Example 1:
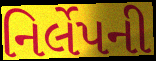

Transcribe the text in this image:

નિર્લેપની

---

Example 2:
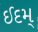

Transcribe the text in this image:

ઈદમ્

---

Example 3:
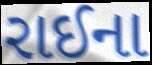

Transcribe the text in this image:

રાઈના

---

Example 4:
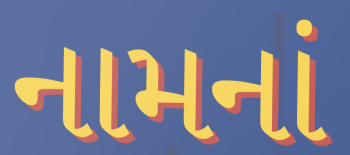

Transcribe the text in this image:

નામનાં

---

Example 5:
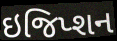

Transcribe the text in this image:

ઇજિપ્શન